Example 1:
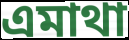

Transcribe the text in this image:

এমাথা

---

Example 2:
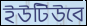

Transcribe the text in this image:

ইউটিউবে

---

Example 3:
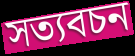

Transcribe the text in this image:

সত্যবচন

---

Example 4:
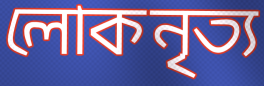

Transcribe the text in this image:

লোকনৃত্য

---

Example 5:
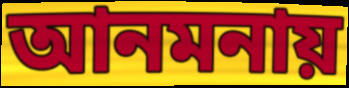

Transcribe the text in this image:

আনমনায়